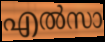
എൽസാ